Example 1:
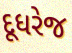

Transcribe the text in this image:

દૂધરેજ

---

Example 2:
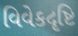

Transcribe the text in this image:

વિવેકદૃષ્ટિ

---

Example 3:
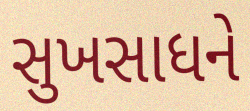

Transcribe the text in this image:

સુખસાધને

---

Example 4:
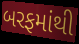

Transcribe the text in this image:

બરફમાંથી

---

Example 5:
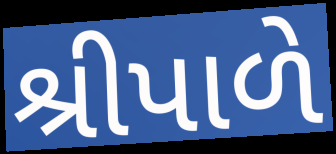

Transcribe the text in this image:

શ્રીપાળે